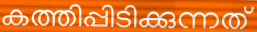
കത്തിപ്പിടിക്കുന്നത്